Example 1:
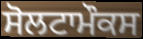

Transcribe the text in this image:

ਸੋਲਟਾਮੌਕਸ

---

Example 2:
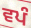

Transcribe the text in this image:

ਵਪੰ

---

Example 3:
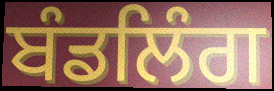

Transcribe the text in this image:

ਬੰਡਲਿੰਗ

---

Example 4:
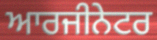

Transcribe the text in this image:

ਆਰਜੀਨੇਟਰ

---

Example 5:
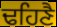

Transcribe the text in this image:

ਢਹਿਣੈ